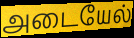
அடையேல்